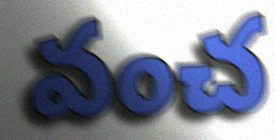
వంచ